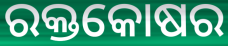
ରକ୍ତକୋଷର